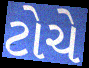
ટોચે